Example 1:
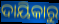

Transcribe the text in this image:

ଦାୟିକାରୁ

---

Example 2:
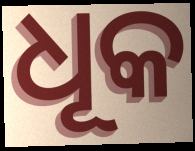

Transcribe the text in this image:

ଧୂକ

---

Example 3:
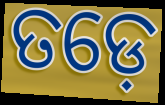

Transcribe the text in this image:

ତଡ଼େ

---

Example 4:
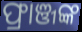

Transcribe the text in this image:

ଫ୍ରାଞ୍ଜଙ୍କ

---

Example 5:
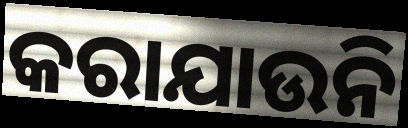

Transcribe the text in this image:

କରାଯାଉନି